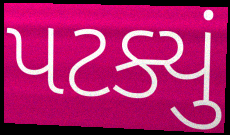
પટક્યું